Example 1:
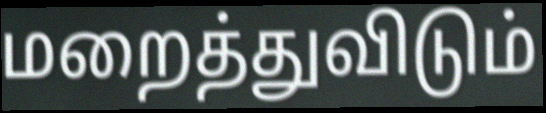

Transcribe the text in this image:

மறைத்துவிடும்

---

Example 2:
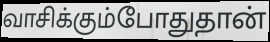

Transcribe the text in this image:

வாசிக்கும்போதுதான்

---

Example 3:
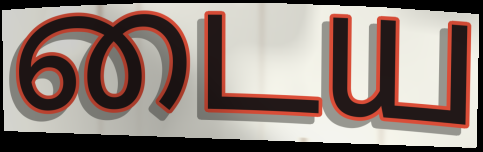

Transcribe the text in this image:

டைய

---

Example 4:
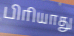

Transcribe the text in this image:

பிரியாது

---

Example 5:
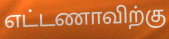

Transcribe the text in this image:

எட்டணாவிற்கு